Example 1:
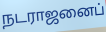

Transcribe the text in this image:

நடராஜனைப்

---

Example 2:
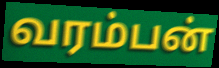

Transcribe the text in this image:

வரம்பன்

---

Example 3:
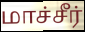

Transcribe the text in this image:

மாச்சீர்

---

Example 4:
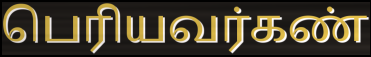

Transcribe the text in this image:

பெரியவர்கண்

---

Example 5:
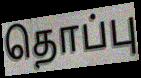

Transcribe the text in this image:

தொப்பு